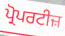
ਪ੍ਰੋਪਰਟੀਜ਼